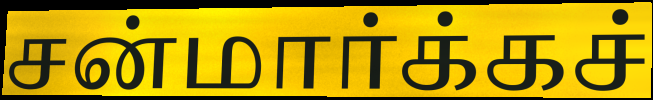
சன்மார்க்கச்